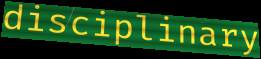
disciplinary